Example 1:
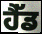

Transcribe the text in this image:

ਹੈੱਡ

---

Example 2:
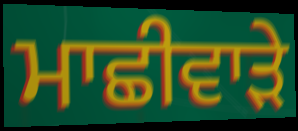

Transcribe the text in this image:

ਮਾਛੀਵਾੜੇ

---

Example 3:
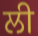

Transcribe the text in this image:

ਲੀ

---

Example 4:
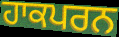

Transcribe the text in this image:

ਹਾਕਪਰਨ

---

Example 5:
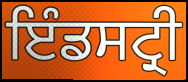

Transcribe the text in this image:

ਇੰਡਸਟ੍ਰੀ